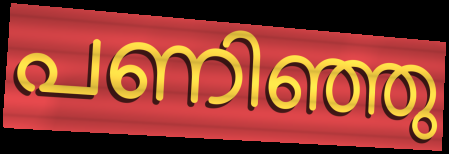
പണിഞ്ഞു